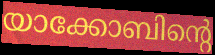
യാക്കോബിന്റെ